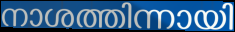
നാശത്തിന്നായി